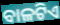
ବାଳଟିଏ